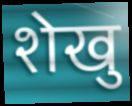
शेखु